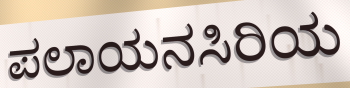
ಪಲಾಯನಸಿರಿಯ